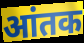
आंतक